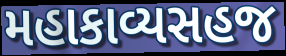
મહાકાવ્યસહજ